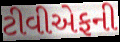
ટીવીએફની